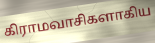
கிராமவாசிகளாகிய